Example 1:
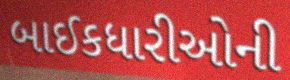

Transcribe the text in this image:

બાઈકધારીઓની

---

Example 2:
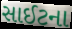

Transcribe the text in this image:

સાઈટના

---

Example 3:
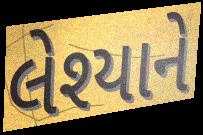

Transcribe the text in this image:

લેશ્યાને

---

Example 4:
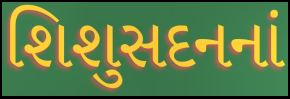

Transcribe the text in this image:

શિશુસદનનાં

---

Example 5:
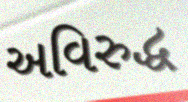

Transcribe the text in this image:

અવિરુદ્ધ